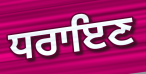
ਧਰਾਇਣ